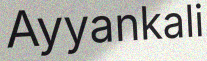
Ayyankali